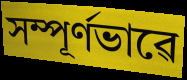
সম্পূৰ্ণভাৱে